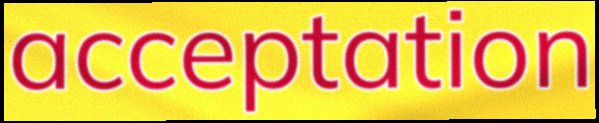
acceptation